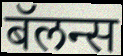
बॅलन्स